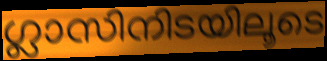
ഗ്ലാസിനിടയിലൂടെ